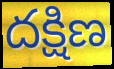
దక్షిణ